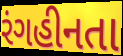
રંગહીનતા